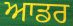
ਆਡਰ